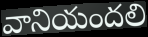
వానియందలి